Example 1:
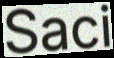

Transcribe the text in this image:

Saci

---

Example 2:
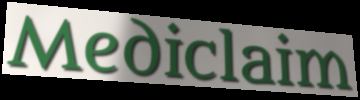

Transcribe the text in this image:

Mediclaim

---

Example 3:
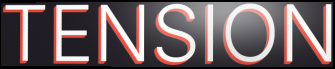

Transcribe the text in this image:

TENSION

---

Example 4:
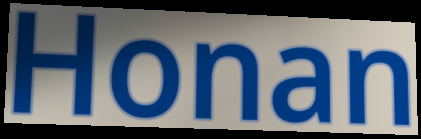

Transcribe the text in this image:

Honan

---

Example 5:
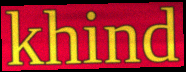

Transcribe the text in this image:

khind